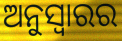
ଅନୁସ୍ଵାରର